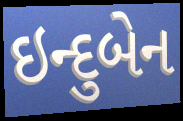
ઇન્દુબેન